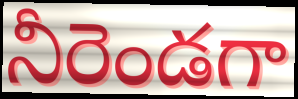
నీరెండగా